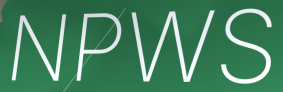
NPWS